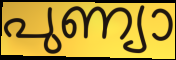
പുണ്യാ